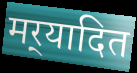
मर्यादित